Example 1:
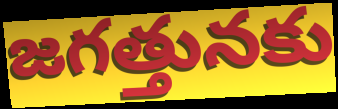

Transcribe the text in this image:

జగత్తునకు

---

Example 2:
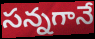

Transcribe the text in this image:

సన్నగానే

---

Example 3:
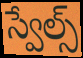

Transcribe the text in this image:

స్వేల్స్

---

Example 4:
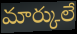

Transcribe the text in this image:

మార్కులే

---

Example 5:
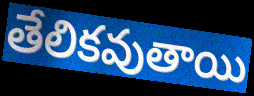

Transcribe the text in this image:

తేలికవుతాయి